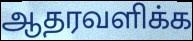
ஆதரவளிக்க